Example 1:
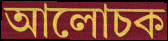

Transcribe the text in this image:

আলোচক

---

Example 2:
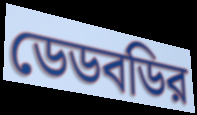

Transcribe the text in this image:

ডেডবডির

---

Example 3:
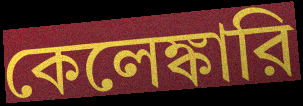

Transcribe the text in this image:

কেলেঙ্কারি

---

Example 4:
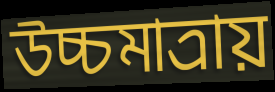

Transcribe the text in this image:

উচ্চমাত্রায়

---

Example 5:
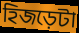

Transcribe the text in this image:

হিজড়েটা